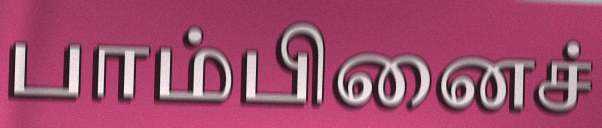
பாம்பினைச்